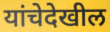
यांचेदेखील